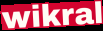
wikral